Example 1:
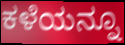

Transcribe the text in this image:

ಕಳೆಯನ್ನೂ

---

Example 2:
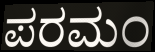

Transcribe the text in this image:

ಪರಮಂ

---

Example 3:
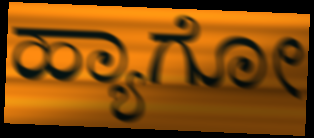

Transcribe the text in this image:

ಹ್ಯಾಗೋ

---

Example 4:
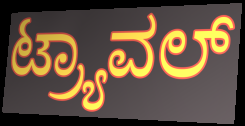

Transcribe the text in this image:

ಟ್ರ್ಯಾವಲ್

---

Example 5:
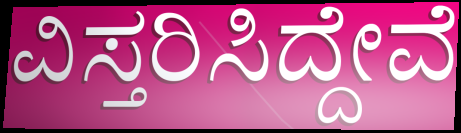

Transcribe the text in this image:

ವಿಸ್ತರಿಸಿದ್ದೇವೆ